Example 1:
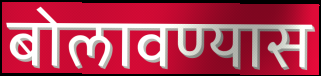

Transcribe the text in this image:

बोलावण्यास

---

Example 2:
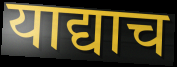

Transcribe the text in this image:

याद्याच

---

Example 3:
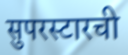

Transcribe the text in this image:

सुपरस्टारची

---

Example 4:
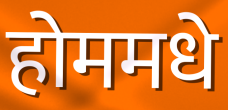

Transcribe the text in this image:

होममधे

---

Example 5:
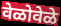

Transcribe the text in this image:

वेळोवेळे